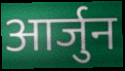
आर्जुन